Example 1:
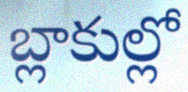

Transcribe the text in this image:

బ్లాకుల్లో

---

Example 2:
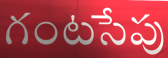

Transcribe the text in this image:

గంటసేపు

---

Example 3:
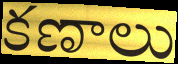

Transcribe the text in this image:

కణాలు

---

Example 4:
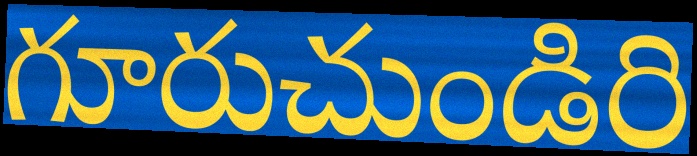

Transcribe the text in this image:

గూరుచుండిరి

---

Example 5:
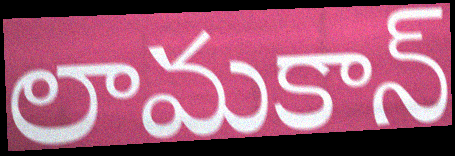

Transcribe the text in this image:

లామకాన్